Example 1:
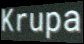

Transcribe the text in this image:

Krupa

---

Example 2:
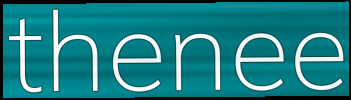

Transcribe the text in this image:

thenee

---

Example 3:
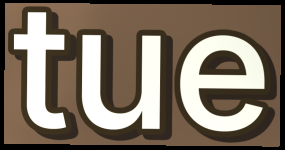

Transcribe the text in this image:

tue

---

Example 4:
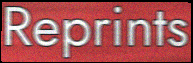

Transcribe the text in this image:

Reprints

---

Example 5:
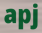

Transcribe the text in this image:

apj